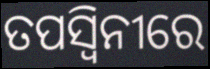
ତପସ୍ଵିନୀରେ